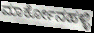
ಮಾರ್ಕೋನಹಳ್ಳಿ